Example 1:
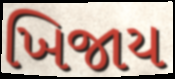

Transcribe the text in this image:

ખિજાય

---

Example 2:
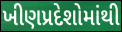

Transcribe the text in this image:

ખીણપ્રદેશોમાંથી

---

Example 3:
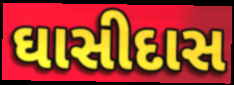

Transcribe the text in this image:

ઘાસીદાસ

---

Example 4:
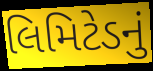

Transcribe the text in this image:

લિમિટેડનું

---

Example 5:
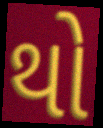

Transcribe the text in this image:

થો